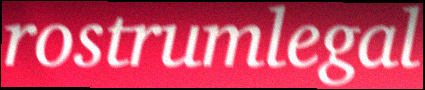
rostrumlegal